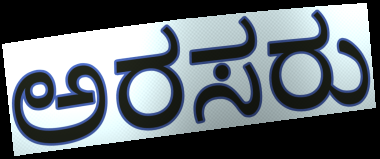
ಅರಸರು